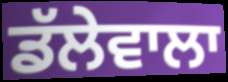
ਡੱਲੇਵਾਲਾ